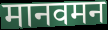
मानवमन